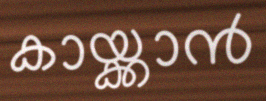
കായ്ക്കാൻ